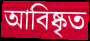
আবিষ্কৃত